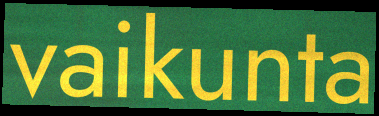
vaikunta